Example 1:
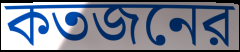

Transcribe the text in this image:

কতজনের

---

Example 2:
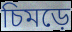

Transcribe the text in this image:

চিমড়ে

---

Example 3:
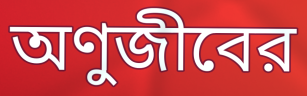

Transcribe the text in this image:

অণুজীবের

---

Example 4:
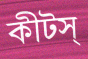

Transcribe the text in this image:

কীটস্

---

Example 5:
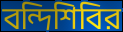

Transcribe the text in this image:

বন্দিশিবির